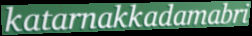
katarnakkadamabri